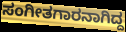
ಸಂಗೀತಗಾರನಾಗಿದ್ದ